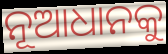
ନୂଆଧାନକୁ